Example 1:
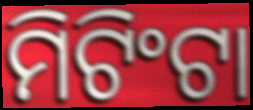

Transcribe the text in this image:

ମିଟିଂଟା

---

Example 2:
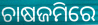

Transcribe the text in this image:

ଚାଷଜମିରେ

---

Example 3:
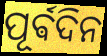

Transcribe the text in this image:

ପୂର୍ଵଦିନ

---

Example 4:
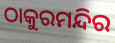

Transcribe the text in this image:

ଠାକୁରମନ୍ଦିର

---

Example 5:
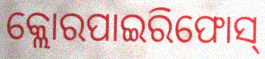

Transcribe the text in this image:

କ୍ଲୋରପାଇରିଫୋସ୍